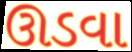
ઊડવા